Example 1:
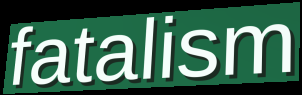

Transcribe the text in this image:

fatalism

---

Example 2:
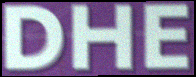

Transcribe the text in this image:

DHE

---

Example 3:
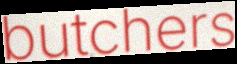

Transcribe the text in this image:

butchers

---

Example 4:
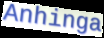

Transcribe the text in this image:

Anhinga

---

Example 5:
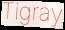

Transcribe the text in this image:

Tigray